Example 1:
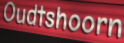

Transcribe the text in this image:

Oudtshoorn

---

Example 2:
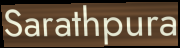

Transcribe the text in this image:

Sarathpura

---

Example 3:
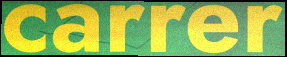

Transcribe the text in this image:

carrer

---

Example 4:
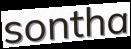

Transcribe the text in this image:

sontha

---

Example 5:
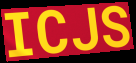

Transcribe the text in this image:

ICJS